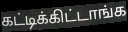
கட்டிக்கிட்டாங்க